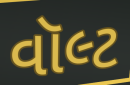
વૉલ્ટ